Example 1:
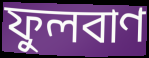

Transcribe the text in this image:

ফুলবাণ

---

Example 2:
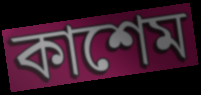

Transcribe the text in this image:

কাশেম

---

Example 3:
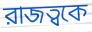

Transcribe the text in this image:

রাজত্বকে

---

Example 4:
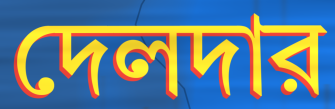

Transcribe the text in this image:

দেলদার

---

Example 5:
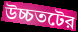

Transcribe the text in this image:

উচ্চতটের